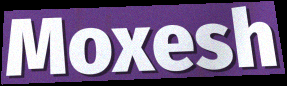
Moxesh